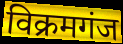
विक्रमगंज